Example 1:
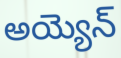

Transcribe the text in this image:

అయ్యెన్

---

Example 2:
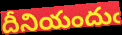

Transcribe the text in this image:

దీనియందుఁ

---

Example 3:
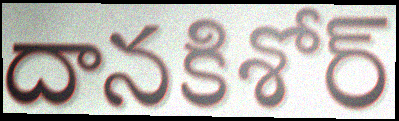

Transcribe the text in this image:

దానకిశోర్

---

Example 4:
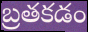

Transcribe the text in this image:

బ్రతకడం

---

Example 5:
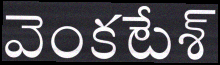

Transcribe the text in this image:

వెంకటేశ్